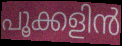
പൂക്കളിൻ